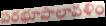
పరభూపాలావళిం